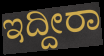
ಇದ್ದೀರಾ